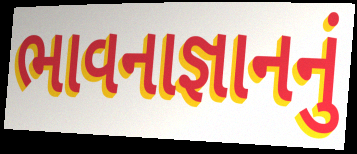
ભાવનાજ્ઞાનનું